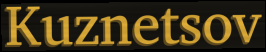
Kuznetsov